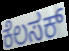
ಕೆಲಸಕ್